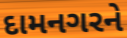
દામનગરને